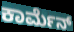
ಕಾರ್ಮೆನ್